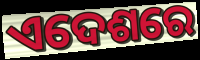
ଏଦେଶରେ